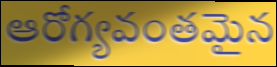
ఆరోగ్యవంతమైన